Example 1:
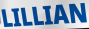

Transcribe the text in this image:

LILLIAN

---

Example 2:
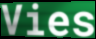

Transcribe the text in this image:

Vies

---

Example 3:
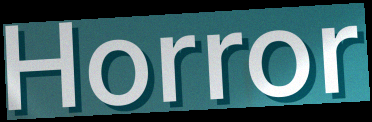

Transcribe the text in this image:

Horror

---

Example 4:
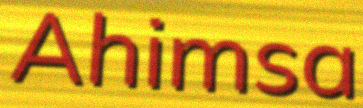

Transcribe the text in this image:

Ahimsa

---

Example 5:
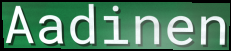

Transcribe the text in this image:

Aadinen